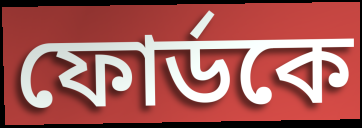
ফোর্ডকে